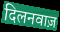
दिलनवाज़